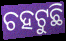
ଚହଟୁଛି